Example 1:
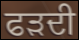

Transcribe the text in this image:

ਫੜਦੀ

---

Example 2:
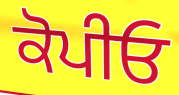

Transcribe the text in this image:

ਕੋਪੀਓ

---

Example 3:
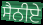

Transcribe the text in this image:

ਸੈਨੀਏ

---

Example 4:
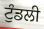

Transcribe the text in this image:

ਟੁੰਡਲੀ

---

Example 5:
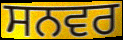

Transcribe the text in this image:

ਸਨਵਰ